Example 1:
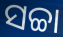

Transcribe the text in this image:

ସଚ୍ଚା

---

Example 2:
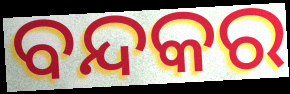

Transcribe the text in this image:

ବନ୍ଦକର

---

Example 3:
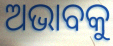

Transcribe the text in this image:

ଅଭାବକୁ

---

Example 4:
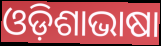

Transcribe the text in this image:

ଓଡ଼ିଶାଭାଷା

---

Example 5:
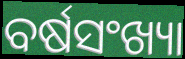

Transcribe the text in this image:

ବର୍ଷସଂଖ୍ୟା